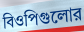
বিওপিগুলোর